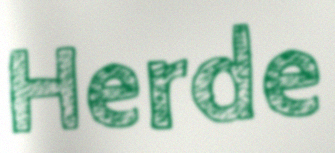
Herde